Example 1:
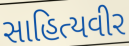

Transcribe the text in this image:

સાહિત્યવીર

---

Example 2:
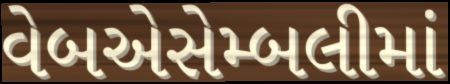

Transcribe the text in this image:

વેબએસેમ્બલીમાં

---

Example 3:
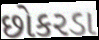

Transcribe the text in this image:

છોકરડા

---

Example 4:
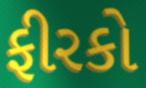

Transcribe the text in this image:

ફીરકો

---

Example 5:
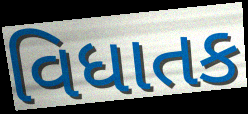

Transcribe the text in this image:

વિધાતક